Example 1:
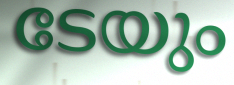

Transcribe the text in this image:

ടേയും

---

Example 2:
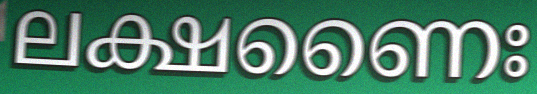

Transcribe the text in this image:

ലക്ഷണൈഃ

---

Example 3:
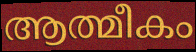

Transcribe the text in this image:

ആത്മീകം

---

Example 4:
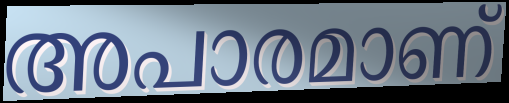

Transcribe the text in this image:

അപാരമാണ്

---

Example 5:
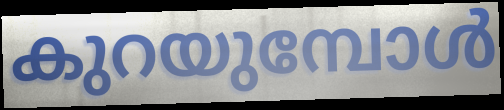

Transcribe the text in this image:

കുറയുമ്പോൾ